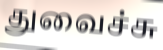
துவைச்சு